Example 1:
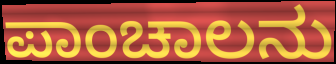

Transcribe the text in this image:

ಪಾಂಚಾಲನು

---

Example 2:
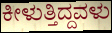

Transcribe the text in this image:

ಕೀಳುತ್ತಿದ್ದವಳು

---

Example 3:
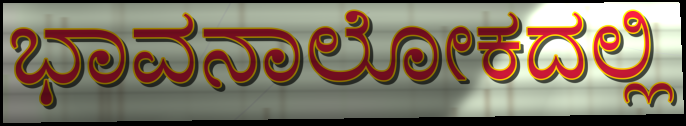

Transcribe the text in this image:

ಭಾವನಾಲೋಕದಲ್ಲಿ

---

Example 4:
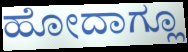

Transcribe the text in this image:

ಹೋದಾಗ್ಲೂ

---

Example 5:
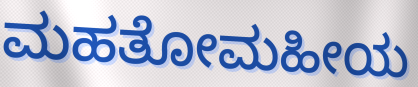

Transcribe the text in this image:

ಮಹತೋಮಹೀಯ